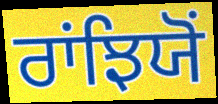
ਰਾਂਝਿਯੋਂ